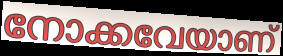
നോക്കവേയാണ്